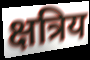
क्षत्रिय